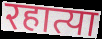
रहात्या